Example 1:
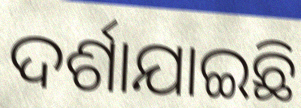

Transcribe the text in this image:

ଦର୍ଶାଯାଇଛି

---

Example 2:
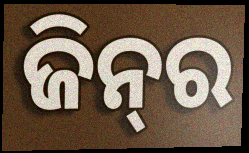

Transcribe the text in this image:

ଜିନ୍‍ର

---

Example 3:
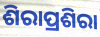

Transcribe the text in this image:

ଶିରାପ୍ରଶିରା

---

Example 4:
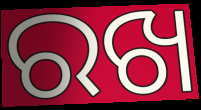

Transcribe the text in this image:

ରଖ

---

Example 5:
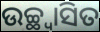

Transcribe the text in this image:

ଉଚ୍ଛ୍ୱାସିତ